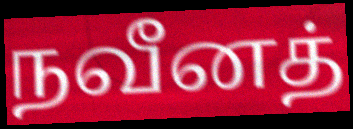
நவீனத்